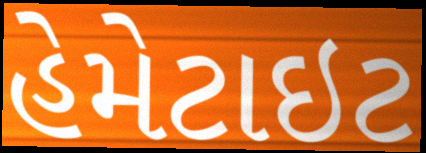
હેમેટાઇટ